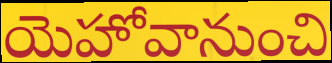
యెహోవానుంచి